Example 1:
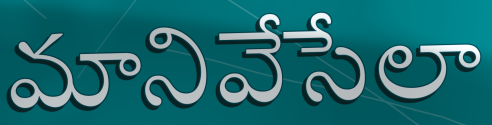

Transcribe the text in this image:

మానివేసేలా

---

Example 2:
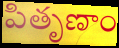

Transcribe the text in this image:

పితృణాం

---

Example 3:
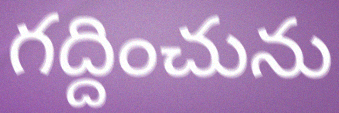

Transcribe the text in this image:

గద్దించును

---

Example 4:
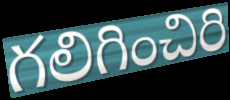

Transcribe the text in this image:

గలిగించిరి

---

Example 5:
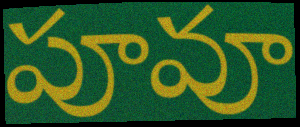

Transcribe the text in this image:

పూవూ